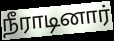
நீராடினார்